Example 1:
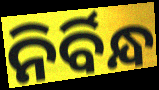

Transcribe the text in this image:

ନିର୍ବିନ୍ଧ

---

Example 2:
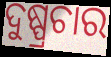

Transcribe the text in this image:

ଦୁଷ୍ପ୍ରଚାର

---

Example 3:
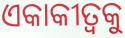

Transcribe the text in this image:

ଏକାକୀତ୍ଵକୁ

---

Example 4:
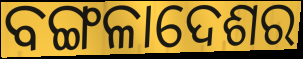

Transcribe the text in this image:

ବଙ୍ଗଳାଦେଶର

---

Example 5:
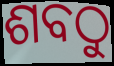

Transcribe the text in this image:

ଶବଠୁ